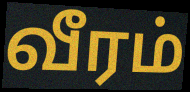
வீரம்